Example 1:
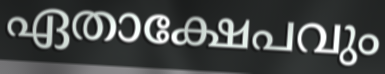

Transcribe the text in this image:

ഏതാക്ഷേപവും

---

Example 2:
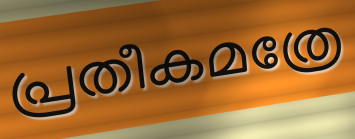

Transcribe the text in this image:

പ്രതീകമത്രേ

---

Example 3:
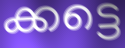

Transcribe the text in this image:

ക്കട്ടെ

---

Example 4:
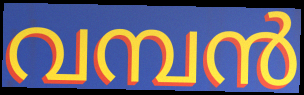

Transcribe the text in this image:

വമ്പൻ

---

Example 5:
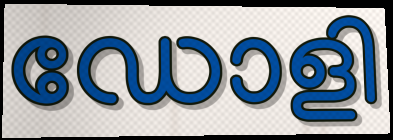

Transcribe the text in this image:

ഡോളി